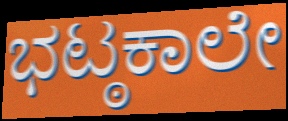
ಭಟ್ಠಕಾಲೇ